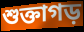
শুক্তাগড়